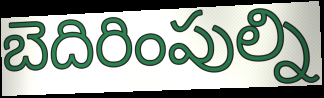
బెదిరింపుల్ని